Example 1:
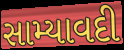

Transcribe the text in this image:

સામ્યાવદી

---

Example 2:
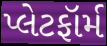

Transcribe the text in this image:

પ્લેટફૉર્મ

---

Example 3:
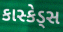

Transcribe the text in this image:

કાસ્કેડ્સ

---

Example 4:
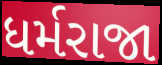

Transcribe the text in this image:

ધર્મરાજા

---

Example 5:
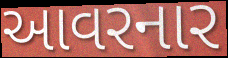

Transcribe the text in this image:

આવરનાર